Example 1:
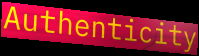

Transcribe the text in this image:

Authenticity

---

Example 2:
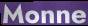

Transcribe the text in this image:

Monne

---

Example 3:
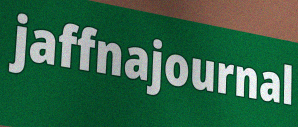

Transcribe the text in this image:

jaffnajournal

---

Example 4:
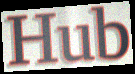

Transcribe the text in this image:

Hub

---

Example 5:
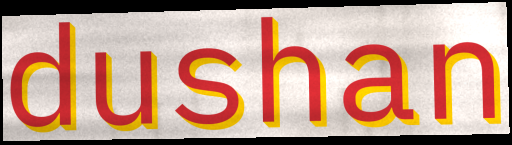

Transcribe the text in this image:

dushan